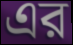
এর